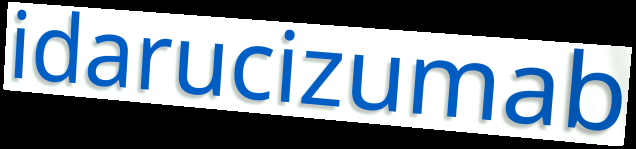
idarucizumab